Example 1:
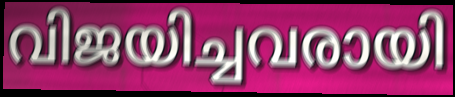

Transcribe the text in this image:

വിജയിച്ചവരായി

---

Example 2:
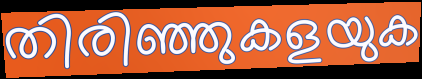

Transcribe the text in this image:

തിരിഞ്ഞുകളയുക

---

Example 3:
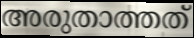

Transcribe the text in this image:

അരുതാത്തത്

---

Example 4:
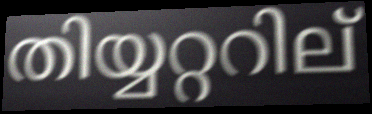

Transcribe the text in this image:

തിയ്യറ്ററില്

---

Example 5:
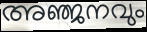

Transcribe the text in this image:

അഞ്ജനവും